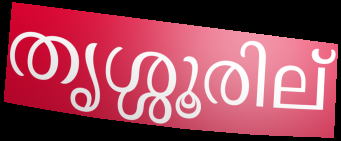
തൃശ്ശൂരില്